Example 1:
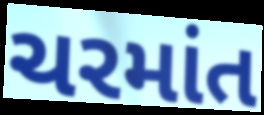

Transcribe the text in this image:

ચરમાંત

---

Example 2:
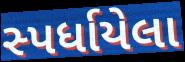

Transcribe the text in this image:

સ્પર્ધાયેલા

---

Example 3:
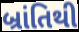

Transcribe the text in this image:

બ્રાંતિથી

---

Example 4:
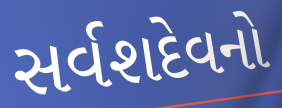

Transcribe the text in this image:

સર્વશદેવનો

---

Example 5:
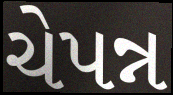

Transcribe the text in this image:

ચેપન્ન